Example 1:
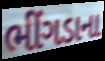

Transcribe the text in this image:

ભીંગડાના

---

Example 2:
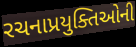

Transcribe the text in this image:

રચનાપ્રયુક્તિઓની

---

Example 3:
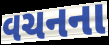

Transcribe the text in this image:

વચનના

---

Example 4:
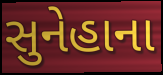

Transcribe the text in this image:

સુનેહાના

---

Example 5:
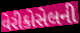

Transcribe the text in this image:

વેરીકોસેલની